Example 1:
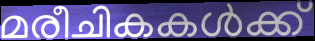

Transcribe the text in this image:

മരീചികകൾക്ക്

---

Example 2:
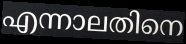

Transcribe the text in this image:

എന്നാലതിനെ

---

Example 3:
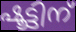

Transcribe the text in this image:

ഷൂട്ടിന്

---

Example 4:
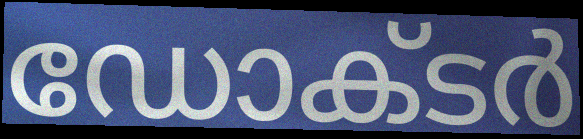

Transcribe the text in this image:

ഡോക്‌ടർ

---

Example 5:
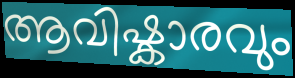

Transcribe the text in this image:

ആവിഷ്കാരവും